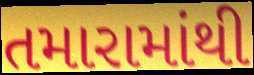
તમારામાંથી